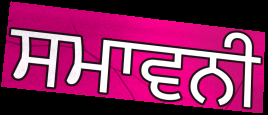
ਸਮਾਵਨੀ